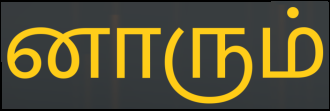
னாரும்